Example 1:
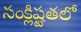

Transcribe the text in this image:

సంక్లిష్టతలో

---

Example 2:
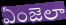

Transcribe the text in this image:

ఏంజెలా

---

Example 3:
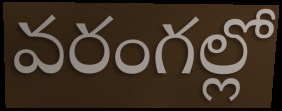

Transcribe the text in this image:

వరంగల్లో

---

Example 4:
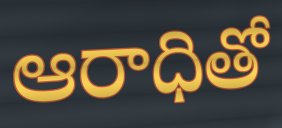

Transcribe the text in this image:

ఆరాధితో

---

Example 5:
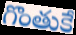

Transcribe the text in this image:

గొంతుకే